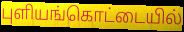
புளியங்கொட்டையில்